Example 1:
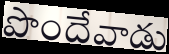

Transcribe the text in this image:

పొందేవాడు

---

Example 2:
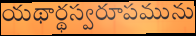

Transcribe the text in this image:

యథార్థస్వరూపమును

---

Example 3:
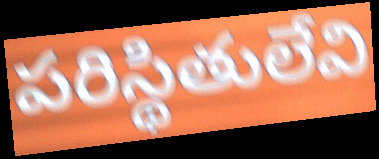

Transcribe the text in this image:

పరిస్థితులేవి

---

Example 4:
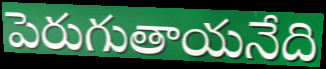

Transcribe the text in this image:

పెరుగుతాయనేది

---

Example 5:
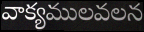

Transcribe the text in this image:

వాక్యములవలన